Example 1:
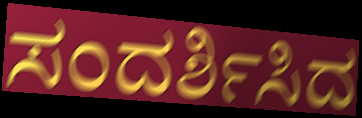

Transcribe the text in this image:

ಸಂದರ್ಶಿಸಿದ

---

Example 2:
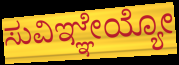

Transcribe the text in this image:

ಸುವಿಞ್ಞೇಯ್ಯೋ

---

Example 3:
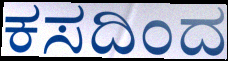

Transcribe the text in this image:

ಕಸದಿಂದ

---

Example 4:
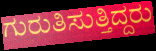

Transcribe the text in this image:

ಗುರುತಿಸುತ್ತಿದ್ದರು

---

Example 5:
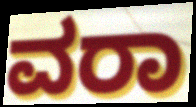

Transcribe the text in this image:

ವರಾ